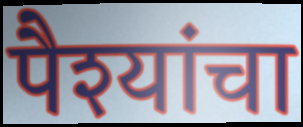
पैश्यांचा